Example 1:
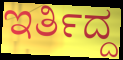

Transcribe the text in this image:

ಇರ್ತಿದ್ದ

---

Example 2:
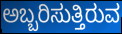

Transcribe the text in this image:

ಅಬ್ಬರಿಸುತ್ತಿರುವ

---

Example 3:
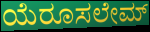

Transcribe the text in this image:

ಯೆರೂಸಲೇಮ್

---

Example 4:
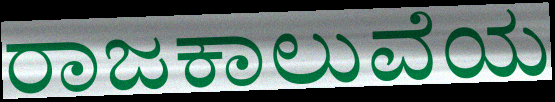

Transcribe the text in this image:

ರಾಜಕಾಲುವೆಯ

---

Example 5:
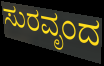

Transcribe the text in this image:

ಸುರವೃಂದ